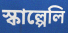
স্কাল্পেলি